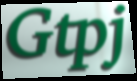
Gtpj